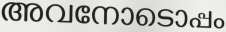
അവനോടൊപ്പം